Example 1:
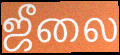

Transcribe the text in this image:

ஜீலை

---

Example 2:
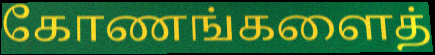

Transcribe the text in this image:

கோணங்களைத்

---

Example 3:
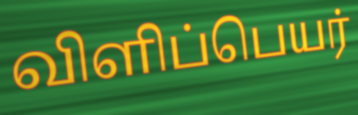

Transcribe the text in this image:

விளிப்பெயர்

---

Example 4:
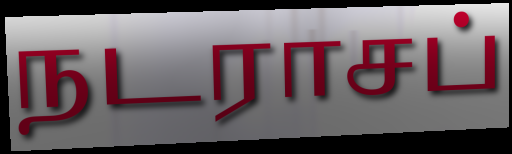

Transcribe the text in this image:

நடராசப்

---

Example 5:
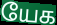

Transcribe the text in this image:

யேக